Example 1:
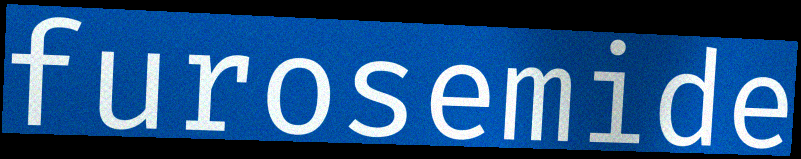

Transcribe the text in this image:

furosemide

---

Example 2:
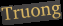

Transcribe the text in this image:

Truong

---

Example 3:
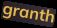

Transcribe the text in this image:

granth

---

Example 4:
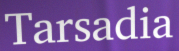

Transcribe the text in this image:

Tarsadia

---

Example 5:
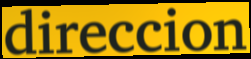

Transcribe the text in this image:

direccion